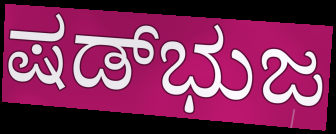
ಷಡ್‌ಭುಜ